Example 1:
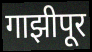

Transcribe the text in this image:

गाझीपूर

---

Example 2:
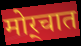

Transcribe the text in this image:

मोर्चात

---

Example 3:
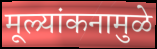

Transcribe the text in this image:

मूल्यांकनामुळे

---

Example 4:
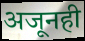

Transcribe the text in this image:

अजूनही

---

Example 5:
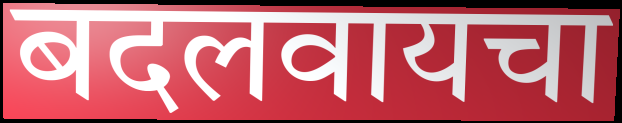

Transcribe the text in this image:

बदलवायचा